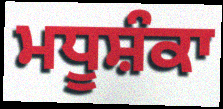
ਮਧੂਸ਼ੰਕਾ